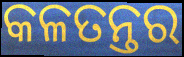
କଳତନ୍ତର